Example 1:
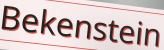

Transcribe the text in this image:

Bekenstein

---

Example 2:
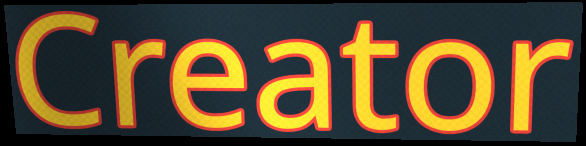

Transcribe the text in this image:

Creator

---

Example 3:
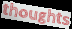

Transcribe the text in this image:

thoughts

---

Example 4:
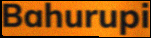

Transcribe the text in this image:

Bahurupi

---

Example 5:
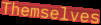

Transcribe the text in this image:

Themselves